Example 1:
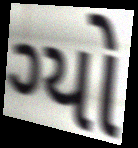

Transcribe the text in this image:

ગ્યો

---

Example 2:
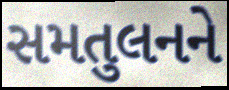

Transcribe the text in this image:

સમતુલનને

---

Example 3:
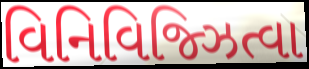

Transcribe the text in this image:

વિનિવિજ્ઝિત્વા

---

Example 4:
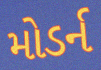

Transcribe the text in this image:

મોડર્ન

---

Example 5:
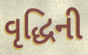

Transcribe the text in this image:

વૃદ્ધિની